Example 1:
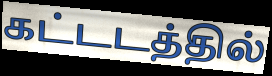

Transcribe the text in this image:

கட்டடத்தில்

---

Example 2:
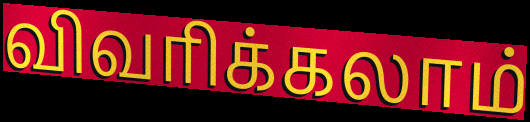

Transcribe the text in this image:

விவரிக்கலாம்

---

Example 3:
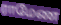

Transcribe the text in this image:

ராமேண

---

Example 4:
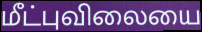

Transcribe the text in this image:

மீட்புவிலையை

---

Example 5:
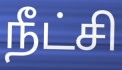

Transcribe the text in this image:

நீட்சி